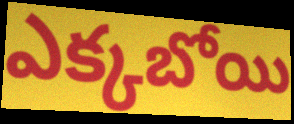
ఎక్కబోయి